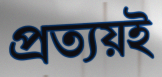
প্রত্যয়ই